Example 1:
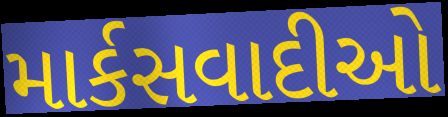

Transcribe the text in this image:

માર્કસવાદીઓ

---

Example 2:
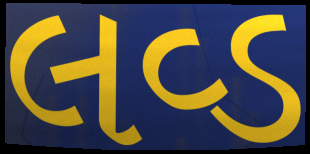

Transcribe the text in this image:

લવ્ડ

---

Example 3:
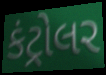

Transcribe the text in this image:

કંટ્રોલર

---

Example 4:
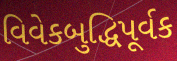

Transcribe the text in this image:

વિવેકબુદ્ધિપૂર્વક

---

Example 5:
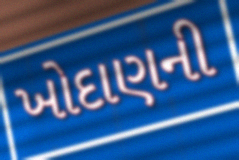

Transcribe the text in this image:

ખોદાણની